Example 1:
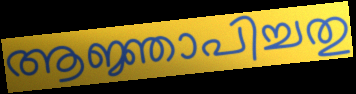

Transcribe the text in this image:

ആജ്ഞാപിച്ചതു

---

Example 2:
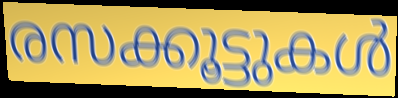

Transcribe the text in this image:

രസക്കൂട്ടുകൾ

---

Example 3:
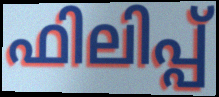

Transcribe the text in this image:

ഫിലിപ്പ്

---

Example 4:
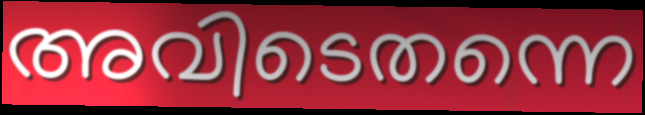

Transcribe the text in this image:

അവിടെതന്നെ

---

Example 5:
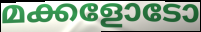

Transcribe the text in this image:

മക്കളോടോ